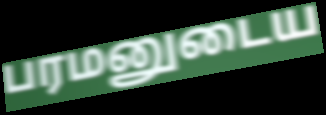
பரமனுடைய